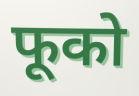
फूको